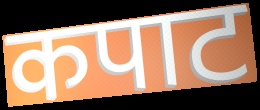
कपाट